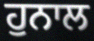
ਹੁਨਾਲ